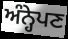
ਅੰਨ੍ਹੇਪਣ